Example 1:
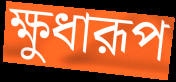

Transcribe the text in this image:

ক্ষুধারূপ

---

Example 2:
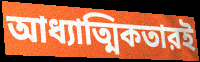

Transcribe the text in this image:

আধ্যাত্মিকতারই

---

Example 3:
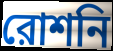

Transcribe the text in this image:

রোশনি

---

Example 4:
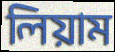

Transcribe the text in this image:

লিয়াম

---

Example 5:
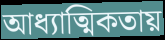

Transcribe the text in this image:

আধ্যাত্মিকতায়